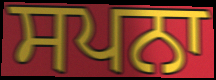
ਸਪਨਾ